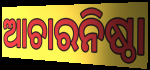
ଆଚାରନିଷ୍ଠା